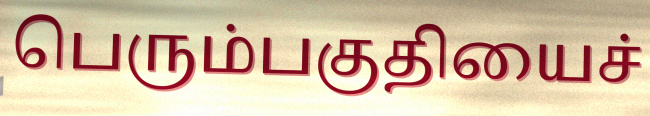
பெரும்பகுதியைச்